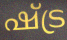
ഷ്ട്ര